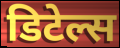
डिटेल्स